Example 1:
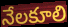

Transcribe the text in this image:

నేలకూలి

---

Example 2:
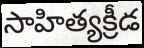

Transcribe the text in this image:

సాహిత్యక్రీడ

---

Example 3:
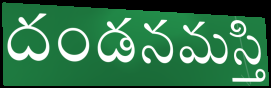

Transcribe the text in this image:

దండనమస్తి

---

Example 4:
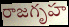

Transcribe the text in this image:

రాజగృహ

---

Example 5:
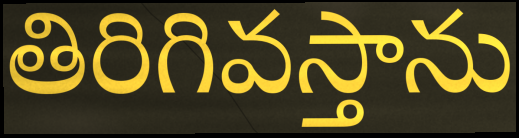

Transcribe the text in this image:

తిరిగివస్తాను